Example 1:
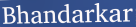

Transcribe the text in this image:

Bhandarkar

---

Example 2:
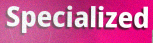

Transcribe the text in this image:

Specialized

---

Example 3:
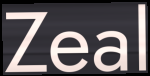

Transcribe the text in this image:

Zeal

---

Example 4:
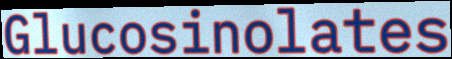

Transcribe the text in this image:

Glucosinolates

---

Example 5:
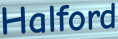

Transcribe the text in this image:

Halford